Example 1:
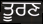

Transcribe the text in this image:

ਤੂਰਣ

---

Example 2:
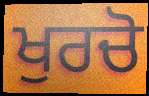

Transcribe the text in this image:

ਖੁਰਚੋ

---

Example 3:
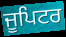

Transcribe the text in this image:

ਜੂਪਿਟਰ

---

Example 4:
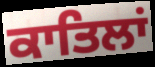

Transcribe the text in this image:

ਕਾਤਿਲਾਂ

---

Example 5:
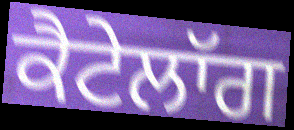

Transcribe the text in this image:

ਕੈਟੇਲਾੱਗ